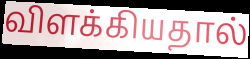
விளக்கியதால்